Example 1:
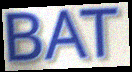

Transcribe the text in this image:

BAT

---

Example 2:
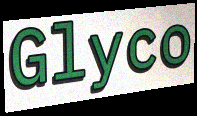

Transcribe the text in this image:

Glyco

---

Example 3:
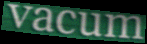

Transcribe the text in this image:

vacum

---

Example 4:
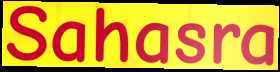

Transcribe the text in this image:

Sahasra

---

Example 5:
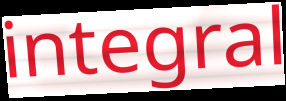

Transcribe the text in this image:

integral